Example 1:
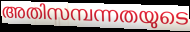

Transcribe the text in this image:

അതിസമ്പന്നതയുടെ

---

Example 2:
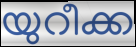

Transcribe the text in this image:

യുറീക്ക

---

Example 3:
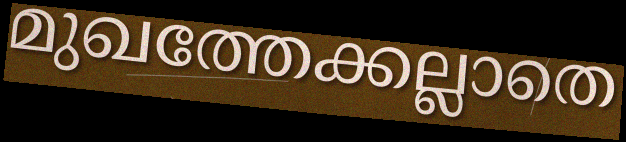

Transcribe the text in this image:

മുഖത്തേക്കല്ലാതെ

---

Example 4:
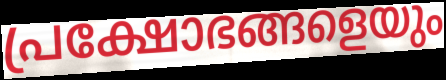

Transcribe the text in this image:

പ്രക്ഷോഭങ്ങളെയും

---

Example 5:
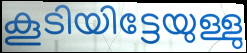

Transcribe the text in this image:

കൂടിയിട്ടേയുള്ളു